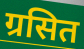
ग्रसित